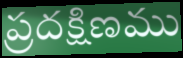
ప్రదక్షిణము